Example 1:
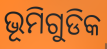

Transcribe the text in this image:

ଭୂମିଗୁଡିକ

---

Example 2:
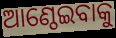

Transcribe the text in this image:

ଆଣ୍ଠେଇବାକୁ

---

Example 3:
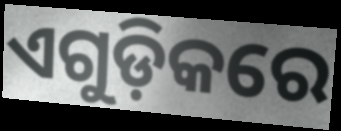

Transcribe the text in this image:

ଏଗୁଡ଼ିକରେ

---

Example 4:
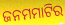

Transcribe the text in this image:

ଜନମମାଟିର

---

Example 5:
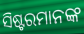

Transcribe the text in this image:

ସିଷ୍ଟରମାନଙ୍କ